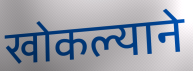
खोकल्याने